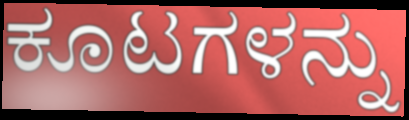
ಕೂಟಗಳನ್ನು